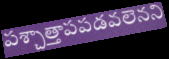
పశ్చాత్తాపపడవలెనని